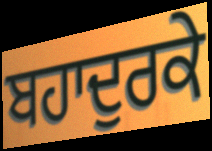
ਬਹਾਦੁਰਕੇ